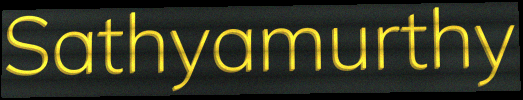
Sathyamurthy